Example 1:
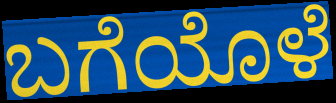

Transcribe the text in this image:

ಬಗೆಯೊಳೆ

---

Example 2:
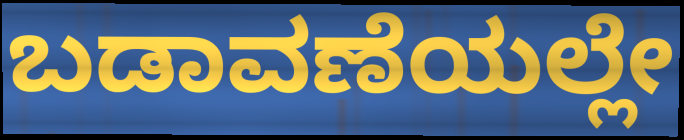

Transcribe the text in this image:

ಬಡಾವಣೆಯಲ್ಲೇ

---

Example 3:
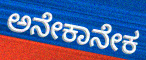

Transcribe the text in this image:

ಅನೇಕಾನೇಕ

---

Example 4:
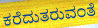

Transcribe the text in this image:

ಕರೆದುತರುವಂತೆ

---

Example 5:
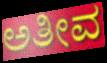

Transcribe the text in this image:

ಅತೀವ